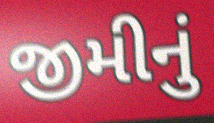
જીમીનું